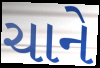
ચાને